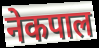
नेकपाल